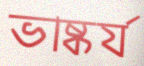
ভাষ্কর্য